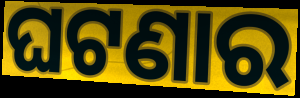
ଘଟଣାର